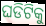
ଘଡିଟିକୁ